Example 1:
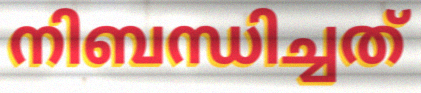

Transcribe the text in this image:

നിബന്ധിച്ചത്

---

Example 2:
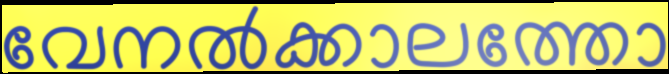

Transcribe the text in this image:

വേനൽക്കാലത്തോ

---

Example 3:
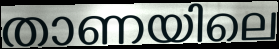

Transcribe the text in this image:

താണയിലെ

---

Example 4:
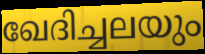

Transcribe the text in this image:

ഖേദിച്ചലയും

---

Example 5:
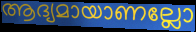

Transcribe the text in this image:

ആദ്യമായാണല്ലോ